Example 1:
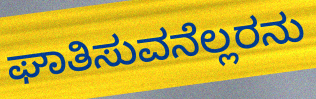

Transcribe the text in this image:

ಘಾತಿಸುವನೆಲ್ಲರನು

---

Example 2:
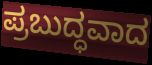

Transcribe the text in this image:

ಪ್ರಬುದ್ಧವಾದ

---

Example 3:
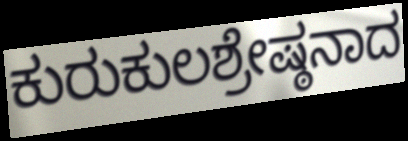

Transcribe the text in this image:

ಕುರುಕುಲಶ್ರೇಷ್ಠನಾದ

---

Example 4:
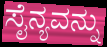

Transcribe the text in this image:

ಸೈನ್ಯವನ್ನು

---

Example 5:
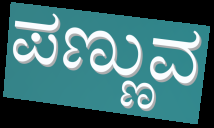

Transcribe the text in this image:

ಪಣ್ಣುವ